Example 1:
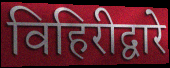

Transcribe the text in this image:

विहिरीद्वारे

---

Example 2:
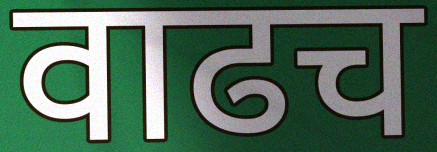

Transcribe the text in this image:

वाढच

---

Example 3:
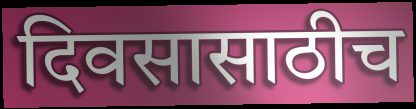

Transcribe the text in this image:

दिवसासाठीच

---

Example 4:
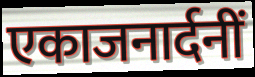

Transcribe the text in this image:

एकाजनार्दनीं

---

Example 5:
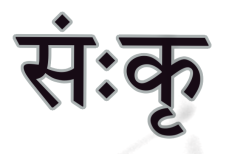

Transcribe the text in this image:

संःकृ